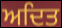
ਅਦਿਤ